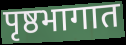
पृष्ठभागात